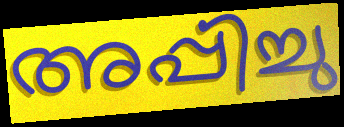
അൎപ്പിച്ചു